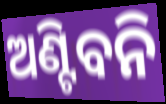
ଅଣ୍ଟିବନି